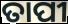
ତାପୀ